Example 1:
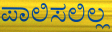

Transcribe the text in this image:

ಪಾಲಿಸಲಿಲ್ಲ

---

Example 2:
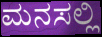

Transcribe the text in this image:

ಮನಸಲ್ಲಿ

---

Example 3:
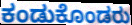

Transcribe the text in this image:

ಕಂಡುಕೊಂಡರು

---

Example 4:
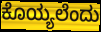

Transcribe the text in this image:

ಕೊಯ್ಯಲೆಂದು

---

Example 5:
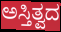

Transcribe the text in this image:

ಅಸ್ತಿತ್ವದ